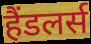
हैंडलर्स